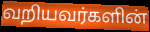
வறியவர்களின்